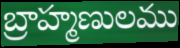
బ్రాహ్మణులము